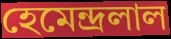
হেমেন্দ্রলাল